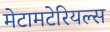
मेटामटेरियल्स